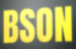
BSON